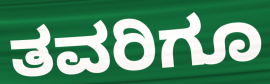
ತವರಿಗೂ